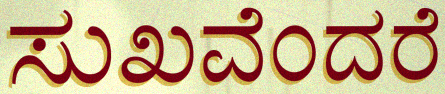
ಸುಖವೆಂದರೆ